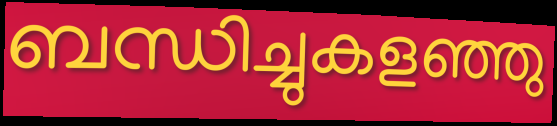
ബന്ധിച്ചുകളഞ്ഞു